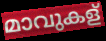
മാവുകള്